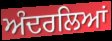
ਅੰਦਰਲਿਆਂ